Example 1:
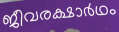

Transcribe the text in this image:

ജീവരക്ഷാർഥം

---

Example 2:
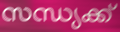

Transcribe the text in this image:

സന്ധ്യക്ക്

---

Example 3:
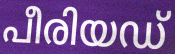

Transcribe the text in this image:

പീരിയഡ്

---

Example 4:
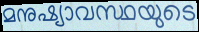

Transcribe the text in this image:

മനുഷ്യാവസ്ഥയുടെ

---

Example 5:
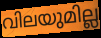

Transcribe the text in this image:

വിലയുമില്ല